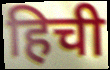
हिची